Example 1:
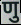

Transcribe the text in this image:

णु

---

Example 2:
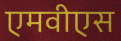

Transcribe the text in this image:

एमवीएस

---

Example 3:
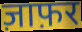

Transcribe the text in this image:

ज़ाफ़र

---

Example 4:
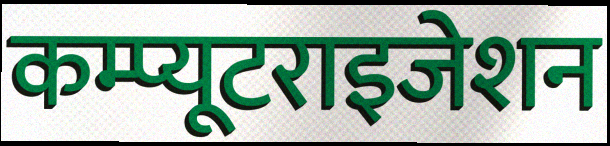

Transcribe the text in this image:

कम्प्यूटराइजेशन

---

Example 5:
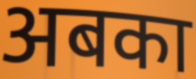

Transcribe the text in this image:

अबका